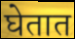
घेतात